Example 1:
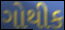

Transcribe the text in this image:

ગોથીક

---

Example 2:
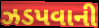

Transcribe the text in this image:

ઝડપવાની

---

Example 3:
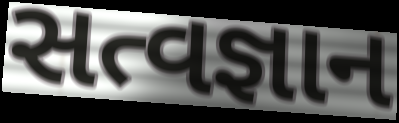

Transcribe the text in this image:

સત્વજ્ઞાન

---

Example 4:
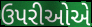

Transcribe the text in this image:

ઉપરીઓએ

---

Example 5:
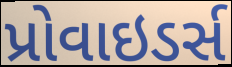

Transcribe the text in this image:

પ્રોવાઇડર્સ